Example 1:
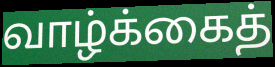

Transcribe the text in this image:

வாழ்க்கைத்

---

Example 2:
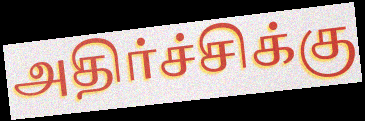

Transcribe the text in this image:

அதிர்ச்சிக்கு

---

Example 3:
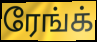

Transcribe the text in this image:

ரேங்க்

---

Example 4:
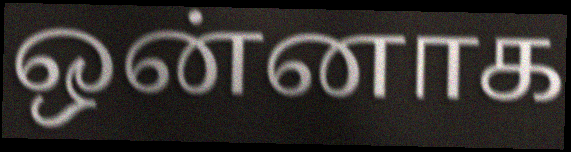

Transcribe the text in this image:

ஒன்னாக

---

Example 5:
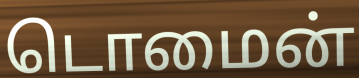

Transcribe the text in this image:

டொமைன்